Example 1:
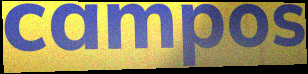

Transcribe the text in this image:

campos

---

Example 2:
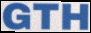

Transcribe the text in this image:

GTH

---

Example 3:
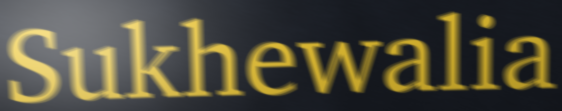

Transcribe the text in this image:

Sukhewalia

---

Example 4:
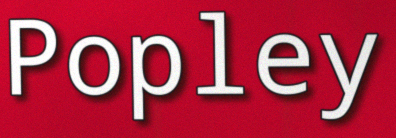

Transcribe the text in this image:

Popley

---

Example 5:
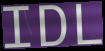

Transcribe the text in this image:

IDL